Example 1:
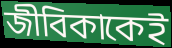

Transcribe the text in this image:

জীবিকাকেই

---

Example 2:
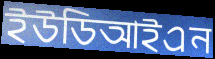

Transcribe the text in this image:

ইউডিআইএন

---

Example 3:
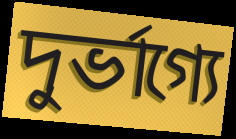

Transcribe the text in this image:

দুর্ভাগ্যে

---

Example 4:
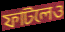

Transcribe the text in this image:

ফাটলেও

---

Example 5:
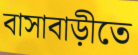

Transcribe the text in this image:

বাসাবাড়ীতে